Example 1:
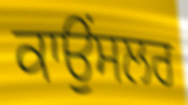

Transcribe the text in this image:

ਕਾਉਂਸਲਰ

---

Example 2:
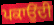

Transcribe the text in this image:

ਪਕਾਉਂਦੀ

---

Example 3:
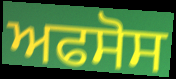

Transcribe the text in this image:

ਅਫਸੋਸ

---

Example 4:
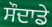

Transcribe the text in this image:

ਸੌਦਾਡੇ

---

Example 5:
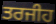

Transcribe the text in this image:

ਤਰਜੀਹ